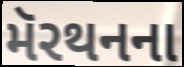
મૅરથનના